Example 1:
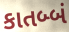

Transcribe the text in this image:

કાતબ્બં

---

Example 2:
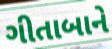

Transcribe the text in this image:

ગીતાબાને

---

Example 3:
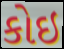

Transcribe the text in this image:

કોઇ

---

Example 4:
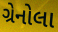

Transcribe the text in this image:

ગ્રેનોલા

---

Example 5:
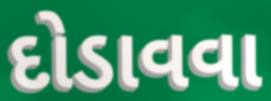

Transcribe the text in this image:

દોડાવવા